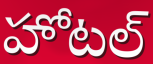
హోటల్